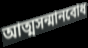
আত্মসন্মানবোধ